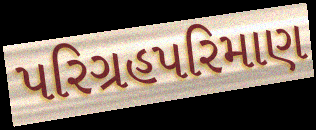
પરિગ્રહપરિમાણ